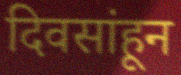
दिवसांहून